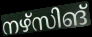
നഴ്സിങ്